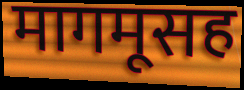
मागमूसह